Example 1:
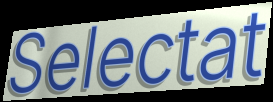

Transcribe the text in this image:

Selectat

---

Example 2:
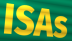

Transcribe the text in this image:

ISAs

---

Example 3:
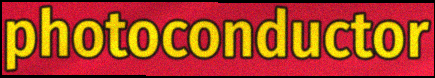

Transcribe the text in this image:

photoconductor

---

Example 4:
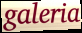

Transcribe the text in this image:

galeria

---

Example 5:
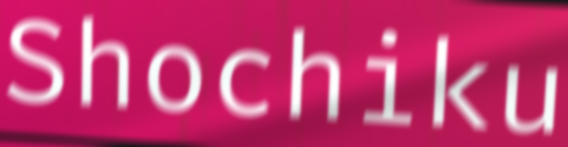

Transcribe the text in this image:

Shochiku